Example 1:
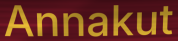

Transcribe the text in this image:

Annakut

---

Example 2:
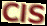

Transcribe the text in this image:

CIS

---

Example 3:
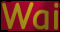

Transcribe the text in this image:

Wai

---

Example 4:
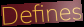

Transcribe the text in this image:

Defines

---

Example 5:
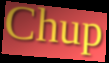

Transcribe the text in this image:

Chup